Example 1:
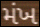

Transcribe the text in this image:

મંખ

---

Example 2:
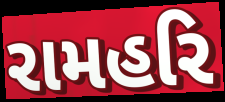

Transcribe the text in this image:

રામહરિ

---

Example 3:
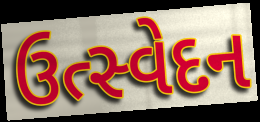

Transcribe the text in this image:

ઉત્સ્વેદન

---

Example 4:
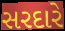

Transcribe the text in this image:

સરદારે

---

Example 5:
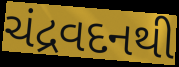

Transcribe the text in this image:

ચંદ્રવદનથી